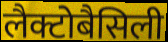
लैक्टोबैसिली